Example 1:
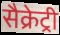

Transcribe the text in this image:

सैक्रेट्री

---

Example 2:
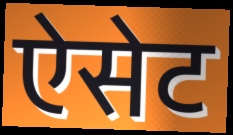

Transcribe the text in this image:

ऐसेट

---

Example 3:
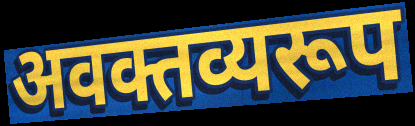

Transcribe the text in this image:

अवक्तव्यरूप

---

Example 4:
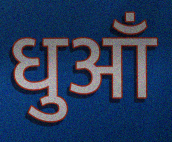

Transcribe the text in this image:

धुआँ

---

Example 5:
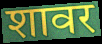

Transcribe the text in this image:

शावर